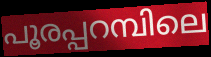
പൂരപ്പറമ്പിലെ